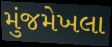
મુંજમેખલા